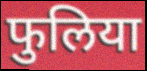
फुलिया